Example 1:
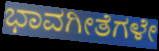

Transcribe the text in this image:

ಭಾವಗೀತೆಗಳೇ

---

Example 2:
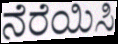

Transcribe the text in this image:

ನೆರೆಯಿಸಿ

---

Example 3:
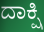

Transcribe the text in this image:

ದಾಕ್ಷಿ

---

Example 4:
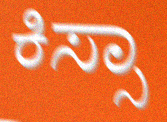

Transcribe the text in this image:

ಕಿಸ್ಸಾ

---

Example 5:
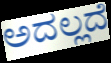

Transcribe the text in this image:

ಅದಲ್ಲದೆ